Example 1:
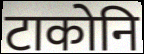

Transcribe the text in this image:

टाकोनि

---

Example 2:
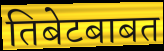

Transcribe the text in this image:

तिबेटबाबत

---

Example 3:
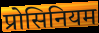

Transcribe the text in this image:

प्रोसिनियम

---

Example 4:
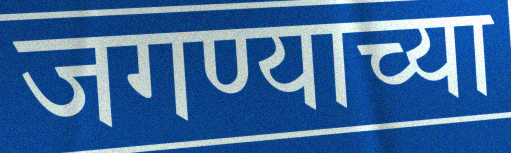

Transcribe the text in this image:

जगण्याच्या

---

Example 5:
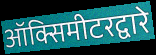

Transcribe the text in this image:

ऑक्सिमीटरद्वारे